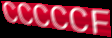
CCCCCF